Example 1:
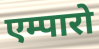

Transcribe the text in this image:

एम्पारो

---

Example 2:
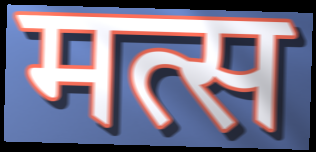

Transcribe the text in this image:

मत्स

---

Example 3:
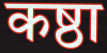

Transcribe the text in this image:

कष्ठा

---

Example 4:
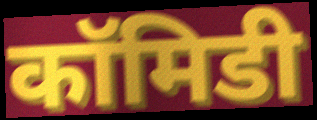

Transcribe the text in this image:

कॉमिडी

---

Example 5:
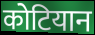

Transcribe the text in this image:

कोटियान